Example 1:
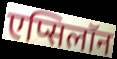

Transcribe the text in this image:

एप्सिलॉन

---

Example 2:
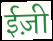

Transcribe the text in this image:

ईज़ी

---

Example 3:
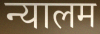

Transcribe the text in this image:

न्यालम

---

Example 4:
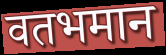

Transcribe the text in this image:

वतभमान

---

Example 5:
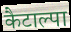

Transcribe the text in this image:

कैटाल्पा